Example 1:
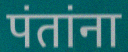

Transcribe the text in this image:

पंतांना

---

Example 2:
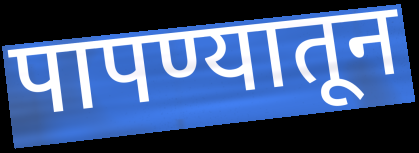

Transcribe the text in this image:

पापण्यातून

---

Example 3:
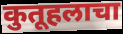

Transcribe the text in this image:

कुतूहलाचा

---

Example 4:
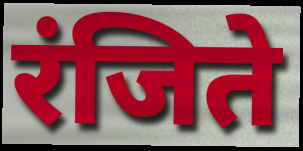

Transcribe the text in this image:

रंजिते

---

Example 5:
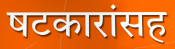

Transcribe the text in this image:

षटकारांसह